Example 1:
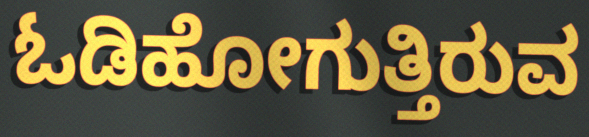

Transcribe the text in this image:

ಓಡಿಹೋಗುತ್ತಿರುವ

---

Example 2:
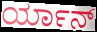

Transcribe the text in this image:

ರ್ಯಾನ್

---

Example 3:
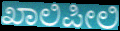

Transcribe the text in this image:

ಖಾಲಿಪೀಲಿ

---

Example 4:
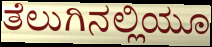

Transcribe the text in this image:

ತೆಲುಗಿನಲ್ಲಿಯೂ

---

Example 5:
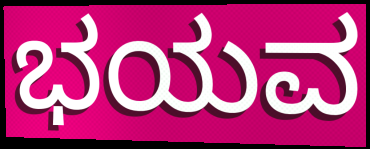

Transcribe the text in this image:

ಭಯವ